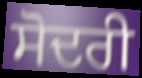
ਸੋਦਰੀ